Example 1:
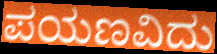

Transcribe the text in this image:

ಪಯಣವಿದು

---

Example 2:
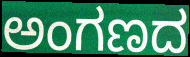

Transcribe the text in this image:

ಅಂಗಣದ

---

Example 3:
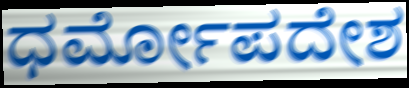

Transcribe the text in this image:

ಧರ್ಮೋಪದೇಶ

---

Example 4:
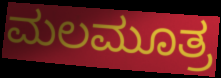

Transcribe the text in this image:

ಮಲಮೂತ್ರ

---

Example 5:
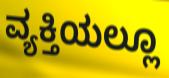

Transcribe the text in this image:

ವ್ಯಕ್ತಿಯಲ್ಲೂ